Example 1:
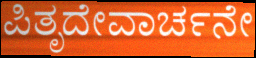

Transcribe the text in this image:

ಪಿತೃದೇವಾರ್ಚನೇ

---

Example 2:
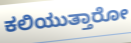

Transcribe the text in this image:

ಕಲಿಯುತ್ತಾರೋ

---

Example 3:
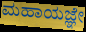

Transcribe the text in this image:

ಮಹಾಯಜ್ಞೇ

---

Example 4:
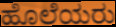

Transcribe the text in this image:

ಹೊಲೆಯರು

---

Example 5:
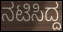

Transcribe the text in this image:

ನಟಿಸಿದ್ದ